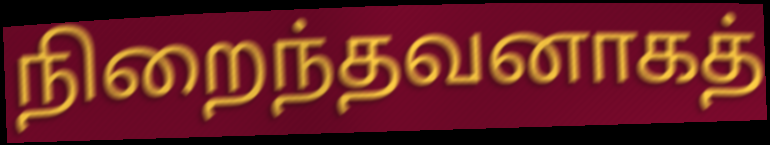
நிறைந்தவனாகத்